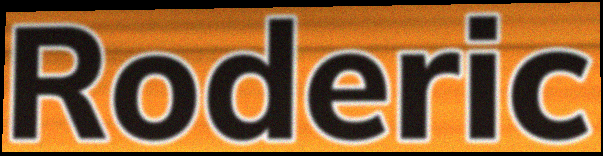
Roderic